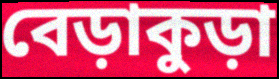
বেড়াকুড়া